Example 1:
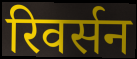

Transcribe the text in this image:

रिवर्सन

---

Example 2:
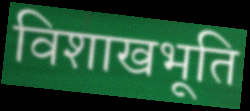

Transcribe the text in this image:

विशाखभूति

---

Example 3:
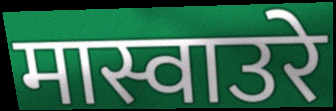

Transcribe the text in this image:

मास्वाउरे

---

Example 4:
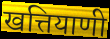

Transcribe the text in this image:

खत्तियाणी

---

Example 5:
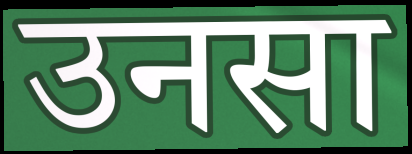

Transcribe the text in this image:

उनसा